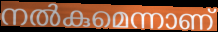
നൽകുമെന്നാണ്